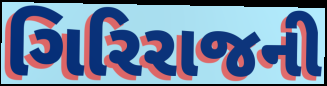
ગિરિરાજની